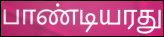
பாண்டியரது